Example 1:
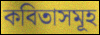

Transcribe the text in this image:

কবিতাসমূহ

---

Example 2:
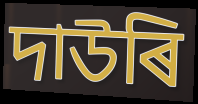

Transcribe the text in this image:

দাউৰি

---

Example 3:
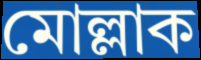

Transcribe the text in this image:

মোল্লাক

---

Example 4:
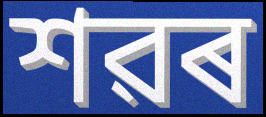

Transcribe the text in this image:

শৱৰ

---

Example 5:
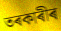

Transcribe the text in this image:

তৰকাৰীৰ